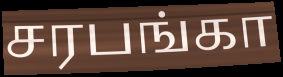
சரபங்கா